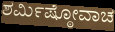
ಶರ್ಮಿಷ್ಠೋವಾಚ